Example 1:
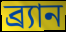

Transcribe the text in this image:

ব্র্যান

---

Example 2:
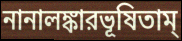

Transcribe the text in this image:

নানালঙ্কারভূষিতাম্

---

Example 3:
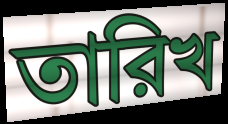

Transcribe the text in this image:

তারিখ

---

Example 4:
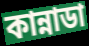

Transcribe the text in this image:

কান্নাডা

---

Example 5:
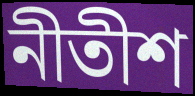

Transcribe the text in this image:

নীতীশ